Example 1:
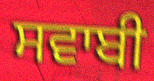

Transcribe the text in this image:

ਸਵਾਬੀ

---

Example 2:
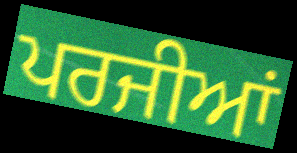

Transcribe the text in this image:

ਪਰਜੀਆਂ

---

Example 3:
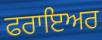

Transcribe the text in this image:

ਫਰਾਇਅਰ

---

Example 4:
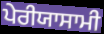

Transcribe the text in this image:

ਪੇਰੀਯਾਸਾਮੀ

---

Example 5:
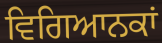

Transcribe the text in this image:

ਵਿਗਿਆਨਕਾਂ